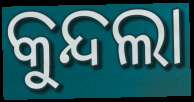
କୁନ୍ଦଲା